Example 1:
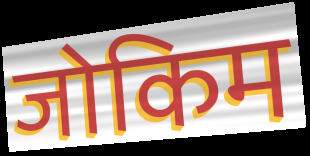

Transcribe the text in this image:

जोकिम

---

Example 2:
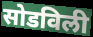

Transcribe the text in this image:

सोडविली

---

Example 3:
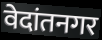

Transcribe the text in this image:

वेदांतनगर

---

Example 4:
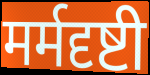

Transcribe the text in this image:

मर्मदृष्टी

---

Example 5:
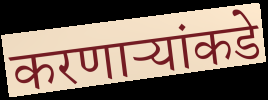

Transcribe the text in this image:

करणाऱ्यांकडे